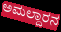
ಅಮಲ್ದಾರನ